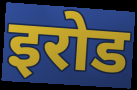
इरोड